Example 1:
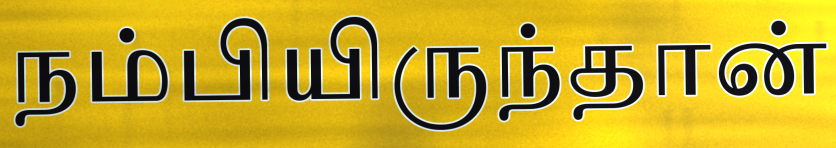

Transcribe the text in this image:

நம்பியிருந்தான்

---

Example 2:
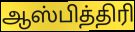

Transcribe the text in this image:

ஆஸ்பித்திரி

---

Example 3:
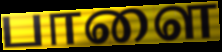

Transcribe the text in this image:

பாளை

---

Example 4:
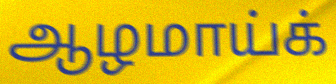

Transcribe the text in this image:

ஆழமாய்க்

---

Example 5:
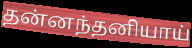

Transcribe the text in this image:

தன்னந்தனியாய்